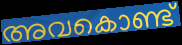
അവകൊണ്ട്